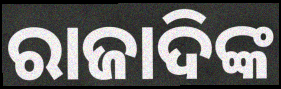
ରାଜାଦିଙ୍କ